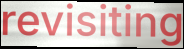
revisiting